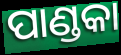
ପାଣ୍ଡକା